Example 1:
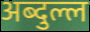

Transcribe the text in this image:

अब्दुल्ल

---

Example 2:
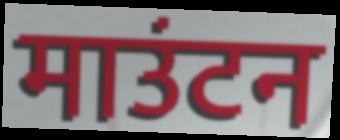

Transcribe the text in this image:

माउंटन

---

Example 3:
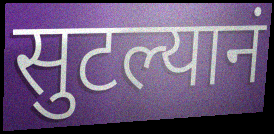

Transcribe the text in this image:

सुटल्यानं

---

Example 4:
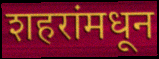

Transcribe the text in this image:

शहरांमधून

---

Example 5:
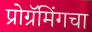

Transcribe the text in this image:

प्रोग्रॅमिंगचा